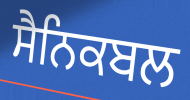
ਸੈਨਿਕਬਲ